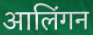
आलिंगन